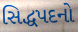
સિદ્ધપદનો